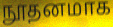
நூதனமாக